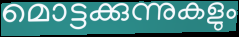
മൊട്ടക്കുന്നുകളും